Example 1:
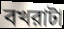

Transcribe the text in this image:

বখরাটা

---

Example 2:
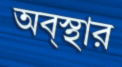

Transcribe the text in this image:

অব্স্থার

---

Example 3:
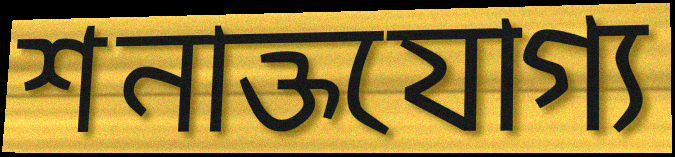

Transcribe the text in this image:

শনাক্তযোগ্য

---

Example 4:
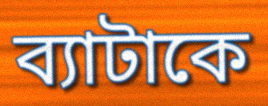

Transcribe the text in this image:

ব্যাটাকে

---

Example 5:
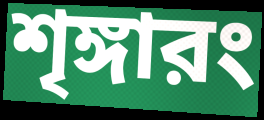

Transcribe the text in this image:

শৃঙ্গারং